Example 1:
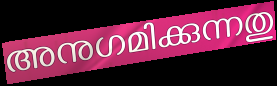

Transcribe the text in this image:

അനുഗമിക്കുന്നതു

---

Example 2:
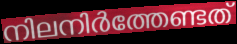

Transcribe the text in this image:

നിലനിർത്തേണ്ടത്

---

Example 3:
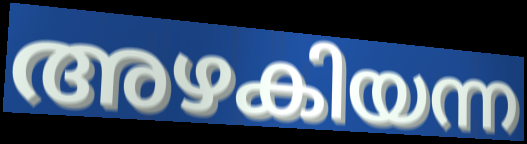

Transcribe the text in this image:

അഴകിയന്ന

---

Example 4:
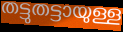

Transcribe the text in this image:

തട്ടുതട്ടായുള്ള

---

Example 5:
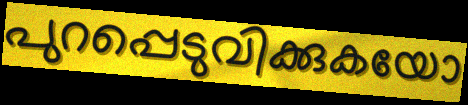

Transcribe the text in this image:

പുറപ്പെടുവിക്കുകയോ